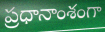
ప్రధానాంశంగా